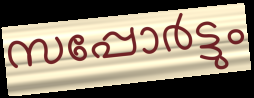
സപ്പോർട്ടും